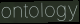
ontology